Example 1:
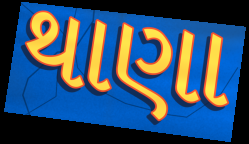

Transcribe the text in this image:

થાણા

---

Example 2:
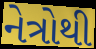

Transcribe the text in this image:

નેત્રોથી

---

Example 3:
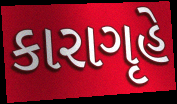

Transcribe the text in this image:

કારાગૃહે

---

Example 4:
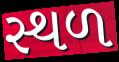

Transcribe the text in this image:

સ્થળ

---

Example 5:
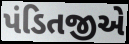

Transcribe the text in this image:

પંડિતજીએ